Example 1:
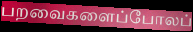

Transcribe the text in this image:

பறவைகளைப்போலப்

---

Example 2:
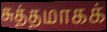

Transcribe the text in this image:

சுத்தமாகக்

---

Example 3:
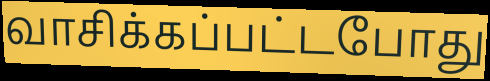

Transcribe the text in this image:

வாசிக்கப்பட்டபோது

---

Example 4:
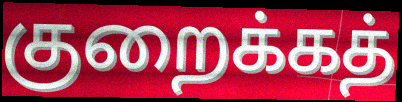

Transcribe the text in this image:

குறைக்கத்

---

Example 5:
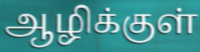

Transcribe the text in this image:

ஆழிக்குள்